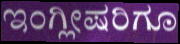
ಇಂಗ್ಲೀಷರಿಗೂ